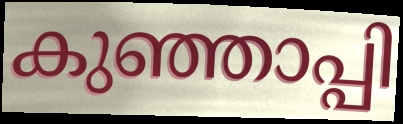
കുഞ്ഞാപ്പി